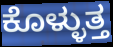
ಕೊಳ್ಳುತ್ತ